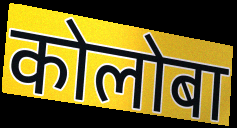
कोलोबा